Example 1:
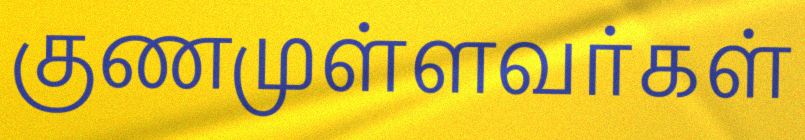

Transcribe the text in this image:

குணமுள்ளவர்கள்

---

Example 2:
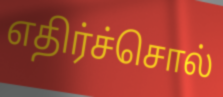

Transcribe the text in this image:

எதிர்ச்சொல்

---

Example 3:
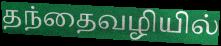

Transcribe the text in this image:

தந்தைவழியில்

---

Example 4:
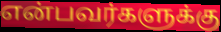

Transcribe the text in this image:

என்பவர்களுக்கு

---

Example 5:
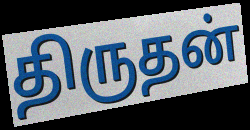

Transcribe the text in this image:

திருதன்